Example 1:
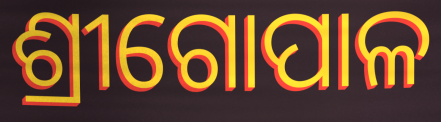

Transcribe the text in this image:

ଶ୍ରୀଗୋପାଳ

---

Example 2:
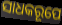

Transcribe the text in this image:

ସାଧକରୂପେ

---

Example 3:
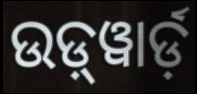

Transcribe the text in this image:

ଉଡ଼୍‍ୱାର୍ଡ଼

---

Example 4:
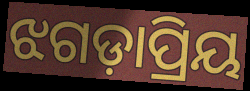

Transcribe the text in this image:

ଝଗଡ଼ାପ୍ରିୟ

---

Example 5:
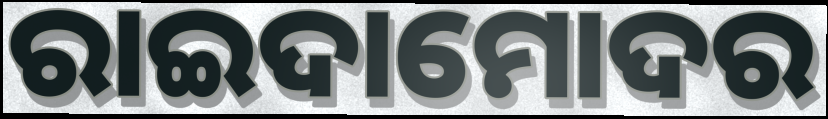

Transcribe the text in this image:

ରାଇଦାମୋଦର